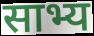
साभ्य